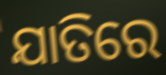
ଯାତିରେ